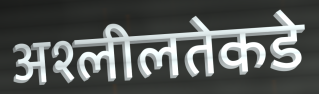
अश्लीलतेकडे